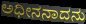
ಅಧೀನನಾದನು